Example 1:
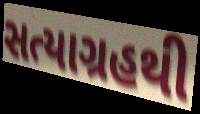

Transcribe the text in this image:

સત્યાગ્રહથી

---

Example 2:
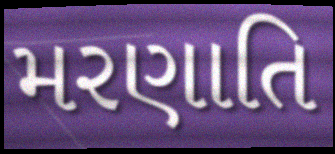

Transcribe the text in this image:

મરણાતિ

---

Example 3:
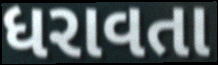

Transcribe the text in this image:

ધરાવતા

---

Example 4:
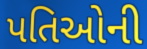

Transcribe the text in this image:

પતિઓની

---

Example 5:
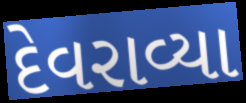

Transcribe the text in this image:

દેવરાવ્યા